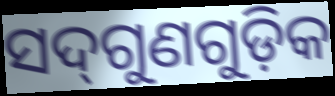
ସଦ୍‌ଗୁଣଗୁଡ଼ିକ